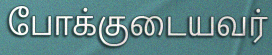
போக்குடையவர்